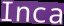
Inca